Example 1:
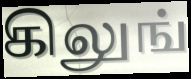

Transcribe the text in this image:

கிலுங்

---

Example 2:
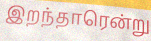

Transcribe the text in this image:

இறந்தாரென்று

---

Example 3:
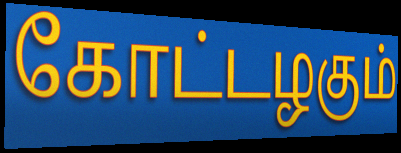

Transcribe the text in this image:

கோட்டழகும்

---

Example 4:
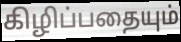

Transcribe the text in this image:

கிழிப்பதையும்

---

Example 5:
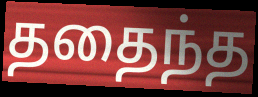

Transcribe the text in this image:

ததைந்த